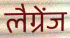
लैग्रेंज